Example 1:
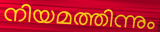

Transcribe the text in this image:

നിയമത്തിന്നും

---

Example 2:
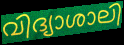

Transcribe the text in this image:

വിദ്യാശാലി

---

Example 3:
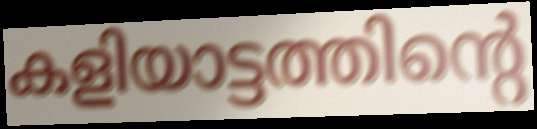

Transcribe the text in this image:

കളിയാട്ടത്തിന്റെ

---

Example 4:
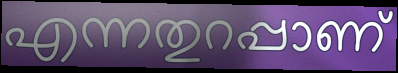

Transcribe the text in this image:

എന്നതുറപ്പാണ്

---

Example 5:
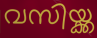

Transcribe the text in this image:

വസിയ്ക്ക